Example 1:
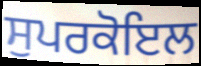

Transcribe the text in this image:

ਸੁਪਰਕੋਇਲ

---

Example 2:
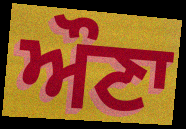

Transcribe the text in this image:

ਔਣਾ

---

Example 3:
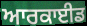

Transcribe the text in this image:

ਆਰਕਾਈਡ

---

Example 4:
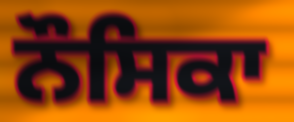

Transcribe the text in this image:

ਨੌਸਿਕਾ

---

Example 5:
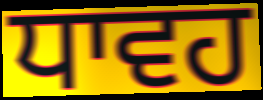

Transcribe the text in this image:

ਧਾਵਹ